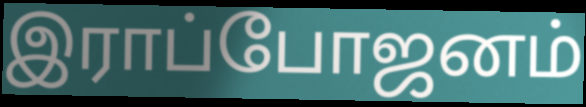
இராப்போஜனம்